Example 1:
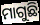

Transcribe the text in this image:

ମାଗୁଛି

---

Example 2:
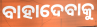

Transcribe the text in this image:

ବାହାଦେବାକୁ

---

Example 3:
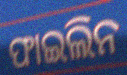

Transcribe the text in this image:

ଫାଇଲିନ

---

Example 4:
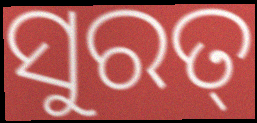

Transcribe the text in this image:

ସୁରତ୍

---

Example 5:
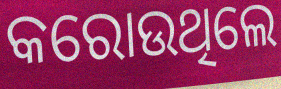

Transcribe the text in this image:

କରୋଉଥିଲେ